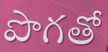
పొగతో